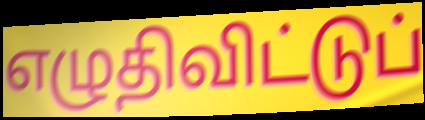
எழுதிவிட்டுப்